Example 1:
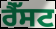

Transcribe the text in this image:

ਰੈੱਸਟ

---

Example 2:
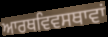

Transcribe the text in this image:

ਆਰਥਵਿਵਸਥਾਵਾਂ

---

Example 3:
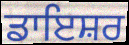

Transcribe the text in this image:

ਡਾਇਸ਼ਰ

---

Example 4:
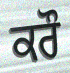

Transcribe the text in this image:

ਕਰੌ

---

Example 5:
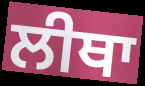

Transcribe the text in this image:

ਲੀਥਾ